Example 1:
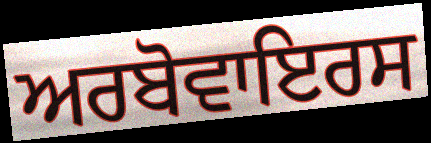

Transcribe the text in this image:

ਅਰਬੋਵਾਇਰਸ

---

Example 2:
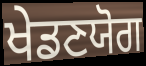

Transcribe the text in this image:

ਖੇਡਣਯੋਗ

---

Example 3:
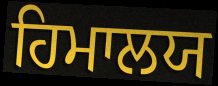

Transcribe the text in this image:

ਹਿਮਾਲਯ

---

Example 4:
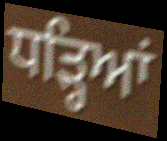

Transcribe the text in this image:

ਧੜ੍ਹਿਆਂ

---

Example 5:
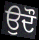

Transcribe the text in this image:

ਉਦੌ